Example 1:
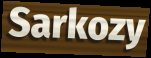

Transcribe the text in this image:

Sarkozy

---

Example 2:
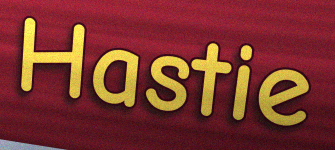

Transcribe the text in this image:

Hastie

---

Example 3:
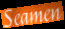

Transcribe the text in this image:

Seamen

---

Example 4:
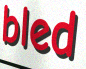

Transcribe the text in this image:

bled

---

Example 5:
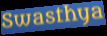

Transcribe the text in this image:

Swasthya